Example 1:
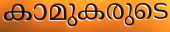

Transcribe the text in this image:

കാമുകരുടെ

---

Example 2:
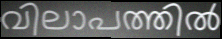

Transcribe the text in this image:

വിലാപത്തിൽ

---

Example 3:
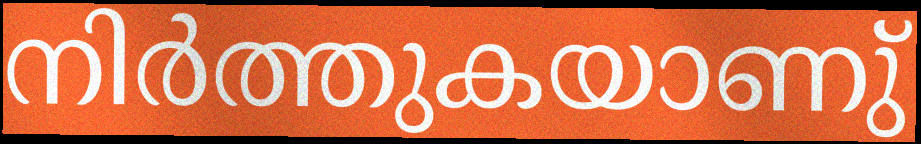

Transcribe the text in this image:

നിർത്തുകയാണു്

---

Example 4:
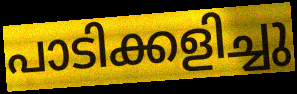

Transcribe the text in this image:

പാടിക്കളിച്ചു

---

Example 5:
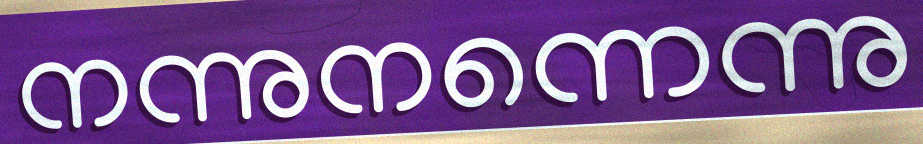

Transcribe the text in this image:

നന്നുനന്നെന്നു